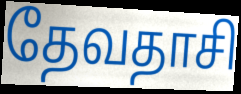
தேவதாசி